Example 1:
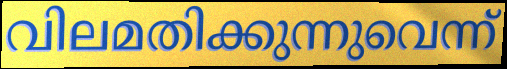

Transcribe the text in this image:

വിലമതിക്കുന്നുവെന്ന്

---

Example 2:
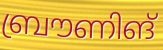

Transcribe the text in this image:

ബ്രൗണിങ്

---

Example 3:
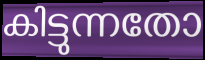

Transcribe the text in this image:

കിട്ടുന്നതോ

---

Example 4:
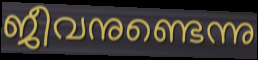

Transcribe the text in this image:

ജീവനുണ്ടെന്നു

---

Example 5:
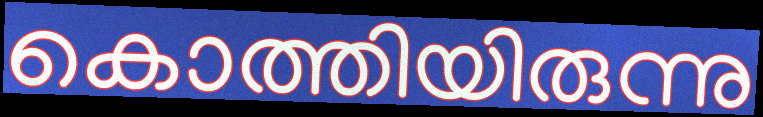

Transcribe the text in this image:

കൊത്തിയിരുന്നു